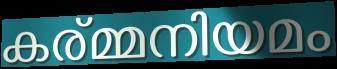
കര്മ്മനിയമം